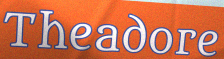
Theadore